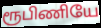
ரூபிணியே